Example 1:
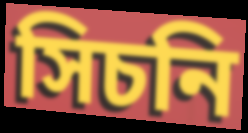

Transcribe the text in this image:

সিচনি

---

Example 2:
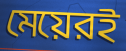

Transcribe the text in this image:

মেয়েরই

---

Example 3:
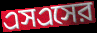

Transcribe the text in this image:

এসএসের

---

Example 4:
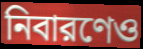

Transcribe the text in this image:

নিবারণেও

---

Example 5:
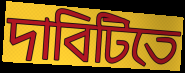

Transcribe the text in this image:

দাবিটিতে